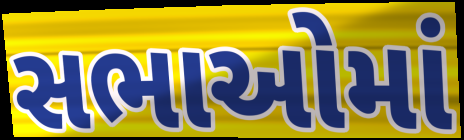
સભાઓમાં